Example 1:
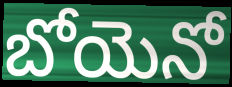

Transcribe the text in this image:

బోయెనో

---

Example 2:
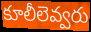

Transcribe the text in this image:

కూలీలెవ్వరు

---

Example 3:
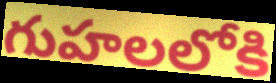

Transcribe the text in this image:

గుహలలోకి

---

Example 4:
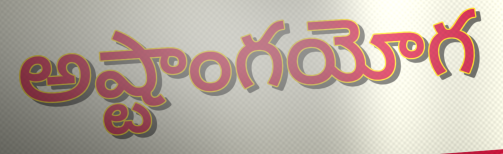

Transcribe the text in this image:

అష్టాంగయోగ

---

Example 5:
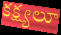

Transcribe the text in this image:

కక్ష్యలూ